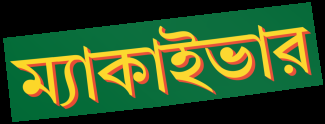
ম্যাকাইভার